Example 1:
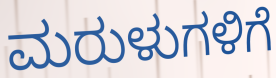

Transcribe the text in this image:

ಮರುಳುಗಳಿಗೆ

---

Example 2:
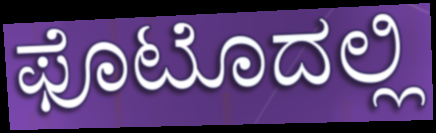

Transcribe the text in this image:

ಫೊಟೊದಲ್ಲಿ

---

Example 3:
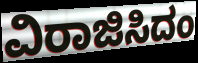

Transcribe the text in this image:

ವಿರಾಜಿಸಿದಂ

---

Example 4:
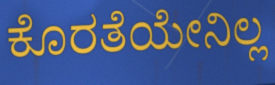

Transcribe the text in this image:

ಕೊರತೆಯೇನಿಲ್ಲ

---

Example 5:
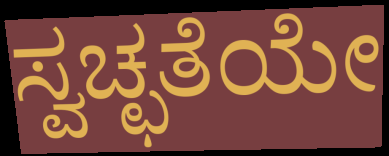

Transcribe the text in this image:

ಸ್ವಚ್ಛತೆಯೇ